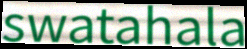
swatahala